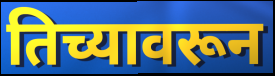
तिच्यावरून